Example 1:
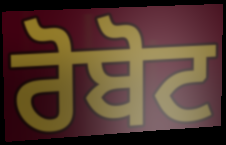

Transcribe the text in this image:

ਰੋਬੋਟ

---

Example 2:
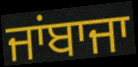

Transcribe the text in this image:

ਜਾਂਬਾਜਾ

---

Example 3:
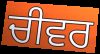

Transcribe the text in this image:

ਚੀਵਰ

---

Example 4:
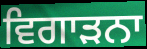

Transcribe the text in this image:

ਵਿਗਾੜਨਾ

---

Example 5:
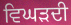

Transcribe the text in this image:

ਵਿਘੜਦੀ